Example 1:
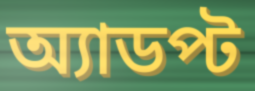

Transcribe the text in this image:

অ্যাডপ্ট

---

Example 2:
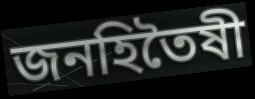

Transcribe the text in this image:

জনহিতৈষী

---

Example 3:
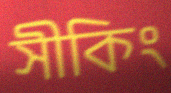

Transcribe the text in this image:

সীকিং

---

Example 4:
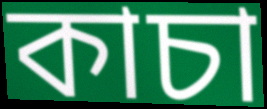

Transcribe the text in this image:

কাচা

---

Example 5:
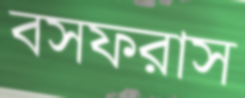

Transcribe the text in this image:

বসফরাস